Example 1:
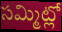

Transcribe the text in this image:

సమ్మిట్లో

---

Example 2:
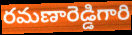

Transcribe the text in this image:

రమణారెడ్డిగారి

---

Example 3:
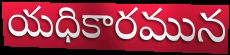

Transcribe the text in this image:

యధికారమున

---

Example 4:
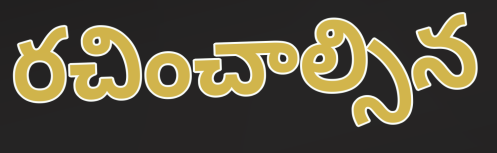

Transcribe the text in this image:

రచించాల్సిన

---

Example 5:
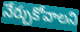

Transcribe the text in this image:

నేర్చుకోవాలని